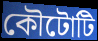
কৌটোটি